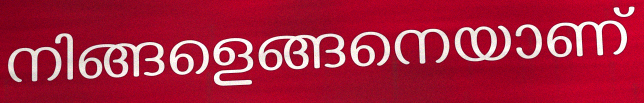
നിങ്ങളെങ്ങനെയാണ്